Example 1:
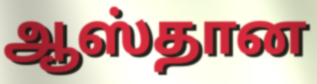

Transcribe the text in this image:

ஆஸ்தான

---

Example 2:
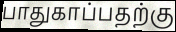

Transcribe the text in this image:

பாதுகாப்பதற்கு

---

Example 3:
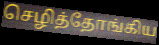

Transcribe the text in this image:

செழித்தோங்கிய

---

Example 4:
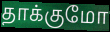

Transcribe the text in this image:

தாக்குமோ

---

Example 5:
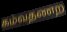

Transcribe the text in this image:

கம்வதணற